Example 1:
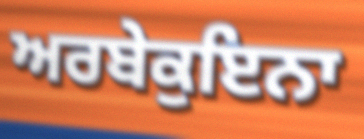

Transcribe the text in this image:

ਅਰਬੇਕੁਇਨਾ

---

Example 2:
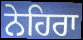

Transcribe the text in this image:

ਨੇਹਿਰਾ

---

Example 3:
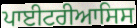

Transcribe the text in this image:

ਪਾਈਟਰੀਆਸਿਸ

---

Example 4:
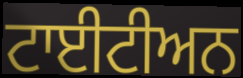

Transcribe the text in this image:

ਟਾਈਟੀਅਨ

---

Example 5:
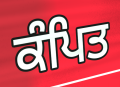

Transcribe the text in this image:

ਕੰਪਿਤ